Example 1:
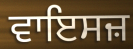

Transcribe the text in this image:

ਵਾਇਸਜ਼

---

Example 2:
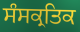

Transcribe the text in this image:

ਸੰਸਕ੍ਰਤਿਕ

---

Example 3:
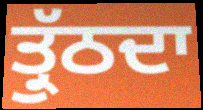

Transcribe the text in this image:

ਤ੍ਰੁੱਠਦਾ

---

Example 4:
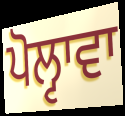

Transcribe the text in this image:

ਪੋਲ੍ਟਾਵਾ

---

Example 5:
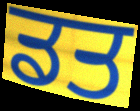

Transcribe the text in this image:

ਡਤ